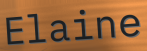
Elaine